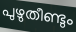
പുഴുതീണ്ടും